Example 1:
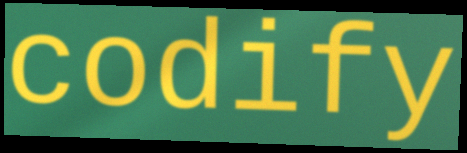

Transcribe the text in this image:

codify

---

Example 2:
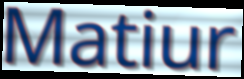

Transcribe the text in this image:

Matiur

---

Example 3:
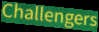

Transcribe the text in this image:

Challengers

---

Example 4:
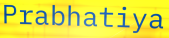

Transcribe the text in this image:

Prabhatiya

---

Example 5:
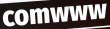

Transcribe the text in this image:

comwww